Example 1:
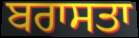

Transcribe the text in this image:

ਬਰਾਸਤਾ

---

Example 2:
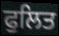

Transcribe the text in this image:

ਫੁਲਿਤ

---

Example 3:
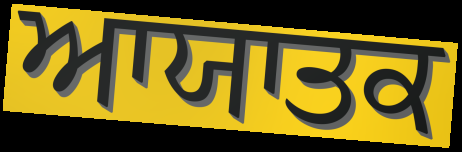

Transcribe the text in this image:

ਆਯਾਤਕ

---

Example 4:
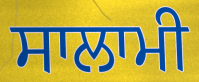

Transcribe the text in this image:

ਸਾਲਾਮੀ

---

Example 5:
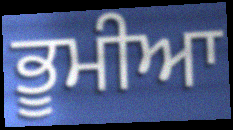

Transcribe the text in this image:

ਭੂਮੀਆ